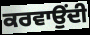
ਕਰਵਾਉਂਦੀ